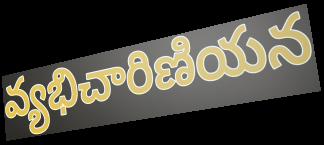
వ్యభిచారిణియన